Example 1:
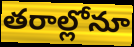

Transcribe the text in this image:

తరాల్లోనూ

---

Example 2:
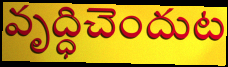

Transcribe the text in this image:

వృద్ధిచెందుట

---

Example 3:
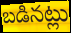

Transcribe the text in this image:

బడినట్లు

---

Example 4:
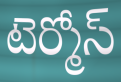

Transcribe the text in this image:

టెర్మోస్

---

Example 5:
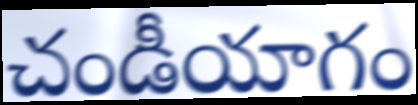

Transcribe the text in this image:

చండీయాగం